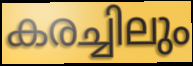
കരച്ചിലും